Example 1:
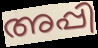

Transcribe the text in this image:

അപ്പി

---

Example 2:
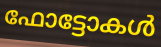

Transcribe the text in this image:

ഫോട്ടോകൾ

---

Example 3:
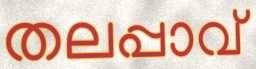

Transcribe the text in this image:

തലപ്പാവ്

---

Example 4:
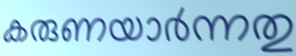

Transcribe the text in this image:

കരുണയാർന്നതു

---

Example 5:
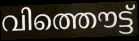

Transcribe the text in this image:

വിത്തൌട്ട്